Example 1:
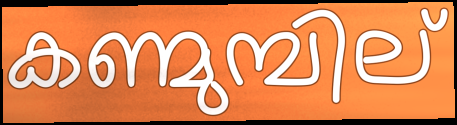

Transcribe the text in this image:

കണ്മുമ്പില്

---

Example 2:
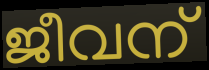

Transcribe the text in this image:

ജീവന്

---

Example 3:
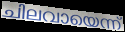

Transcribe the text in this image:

ചിലവായെന്ന്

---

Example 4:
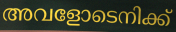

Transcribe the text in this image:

അവളോടെനിക്ക്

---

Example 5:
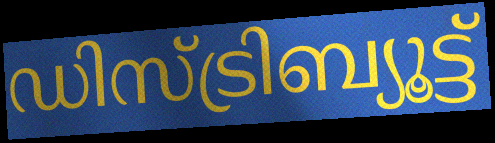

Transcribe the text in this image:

ഡിസ്ട്രിബ്യൂട്ട്